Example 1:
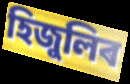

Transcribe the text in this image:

হিজুলিৰ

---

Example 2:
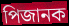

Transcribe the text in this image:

পিজানক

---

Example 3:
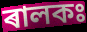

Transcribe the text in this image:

ৰালকঃ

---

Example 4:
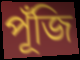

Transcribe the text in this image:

পূঁজি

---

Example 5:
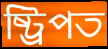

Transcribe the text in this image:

ষ্ট্ৰিপত